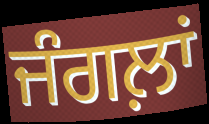
ਜੰਗਲ਼ਾਂ